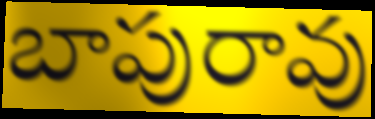
బాపురావు